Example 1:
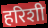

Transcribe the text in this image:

हरिशी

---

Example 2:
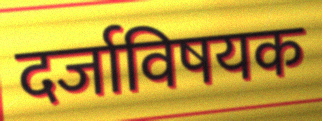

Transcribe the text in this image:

दर्जाविषयक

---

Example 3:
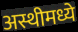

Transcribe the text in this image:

अस्थीमध्ये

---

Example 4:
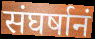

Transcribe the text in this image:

संघर्षानं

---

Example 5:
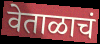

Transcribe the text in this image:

वेताळाचं